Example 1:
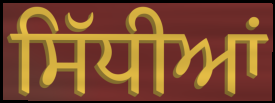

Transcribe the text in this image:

ਸਿੱਧੀਆਂ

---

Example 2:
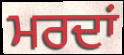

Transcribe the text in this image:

ਮਰਦਾਂ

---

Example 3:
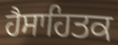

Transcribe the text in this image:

ਹੈਸਾਹਿਤਕ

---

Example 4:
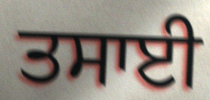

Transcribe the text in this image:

ਤਸਾਈ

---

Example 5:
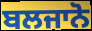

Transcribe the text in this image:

ਬਲਜਾਨੋ